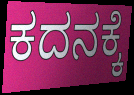
ಕದನಕ್ಕೆ